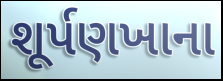
શૂર્પણખાના